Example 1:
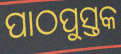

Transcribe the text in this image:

ପାଠପୁସ୍ତକ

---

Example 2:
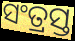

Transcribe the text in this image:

ସଂତ୍ରସ୍ତ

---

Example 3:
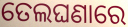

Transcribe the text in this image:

ତେଲଘଣାରେ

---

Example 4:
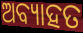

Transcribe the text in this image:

ଅବ୍ୟାହତ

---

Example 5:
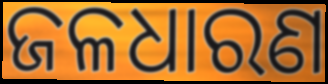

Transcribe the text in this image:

ଜଳଧାରଣ